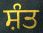
ਸ਼ੰਤ